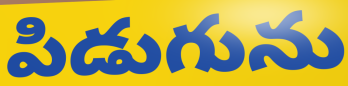
పిడుగును